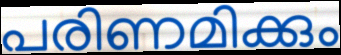
പരിണമിക്കും